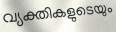
വ്യക്തികളുടെയും